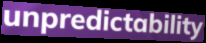
unpredictability